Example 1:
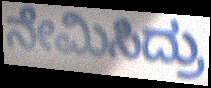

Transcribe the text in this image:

ನೇಮಿಸಿದ್ರು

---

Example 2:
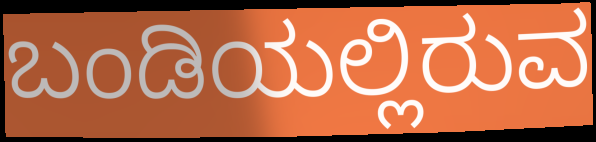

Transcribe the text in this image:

ಬಂಡಿಯಲ್ಲಿರುವ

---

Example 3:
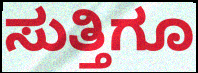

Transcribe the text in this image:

ಸುತ್ತಿಗೂ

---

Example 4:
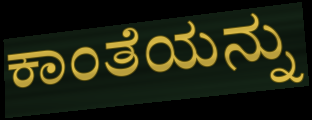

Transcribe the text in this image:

ಕಾಂತೆಯನ್ನು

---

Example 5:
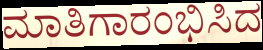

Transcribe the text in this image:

ಮಾತಿಗಾರಂಭಿಸಿದ